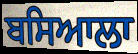
ਬਸਿਆਲਾ